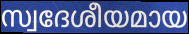
സ്വദേശീയമായ